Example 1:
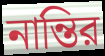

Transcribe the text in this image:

নান্তির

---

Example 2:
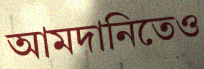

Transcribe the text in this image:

আমদানিতেও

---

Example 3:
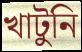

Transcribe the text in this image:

খাটুনি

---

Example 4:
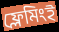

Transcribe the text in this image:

ফ্লেমিংই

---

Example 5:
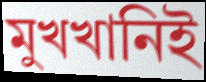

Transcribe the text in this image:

মুখখানিই